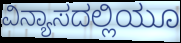
ವಿನ್ಯಾಸದಲ್ಲಿಯೂ